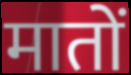
मातों